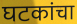
घटकांचा